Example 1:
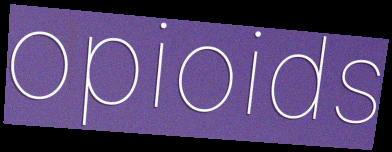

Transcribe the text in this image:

opioids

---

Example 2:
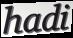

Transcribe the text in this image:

hadi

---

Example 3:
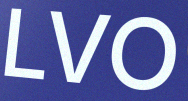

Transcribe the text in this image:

LVO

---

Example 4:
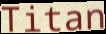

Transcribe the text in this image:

Titan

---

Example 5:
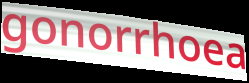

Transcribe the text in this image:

gonorrhoea